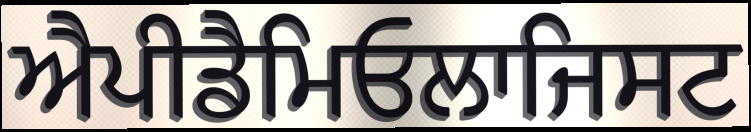
ਐਪੀਡੈਮਿਓਲਾਜਿਸਟ